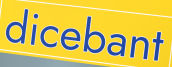
dicebant